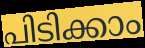
പിടിക്കാം